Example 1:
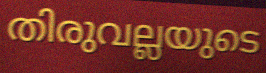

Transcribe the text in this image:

തിരുവല്ലയുടെ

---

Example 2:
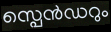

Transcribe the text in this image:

സ്പെൻഡറും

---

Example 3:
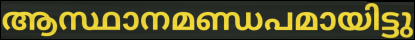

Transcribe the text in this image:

ആസ്ഥാനമണ്ഡപമായിട്ടു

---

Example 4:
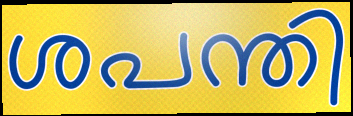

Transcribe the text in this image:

ശപന്തി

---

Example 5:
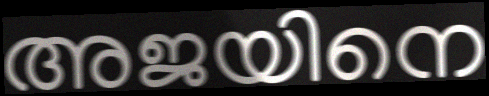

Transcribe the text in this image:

അജയിനെ